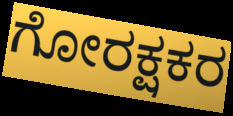
ಗೋರಕ್ಷಕರ